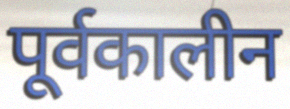
पूर्वकालीन